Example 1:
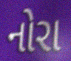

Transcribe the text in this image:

નોરા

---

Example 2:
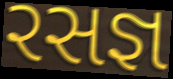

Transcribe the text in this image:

રસજ્ઞ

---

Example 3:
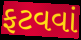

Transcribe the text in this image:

ફટવવાં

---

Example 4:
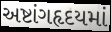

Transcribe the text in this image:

અષ્ટાંગહૃદયમાં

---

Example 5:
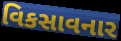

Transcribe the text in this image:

વિકસાવનાર